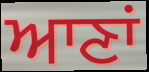
ਆਣਾਂ